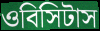
ওবিসিটাস